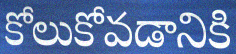
కోలుకోవడానికి